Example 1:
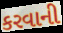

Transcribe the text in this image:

કરવાની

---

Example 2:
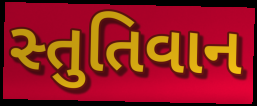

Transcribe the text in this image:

સ્તુતિવાન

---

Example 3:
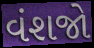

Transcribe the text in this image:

વંશજો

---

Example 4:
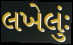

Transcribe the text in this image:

લખેલુંઃ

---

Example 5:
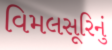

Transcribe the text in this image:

વિમલસૂરિનું